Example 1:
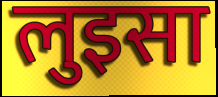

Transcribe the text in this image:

लुइसा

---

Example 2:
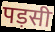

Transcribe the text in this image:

पड़सी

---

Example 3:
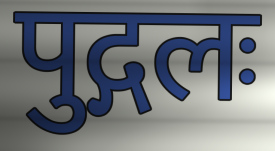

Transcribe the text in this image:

पुद्गलः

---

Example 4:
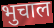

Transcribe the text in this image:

भुचाल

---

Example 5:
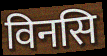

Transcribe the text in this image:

विनसि